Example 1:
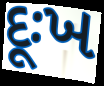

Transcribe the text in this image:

દૂઃખ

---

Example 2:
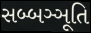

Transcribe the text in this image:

સબ્બઞ્ઞૂતિ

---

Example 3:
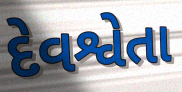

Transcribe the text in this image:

દેવશ્વેતા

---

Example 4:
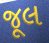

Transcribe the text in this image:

જૂલ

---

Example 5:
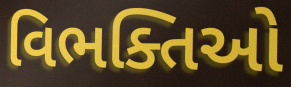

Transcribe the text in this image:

વિભક્તિઓ